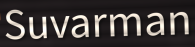
Suvarman